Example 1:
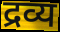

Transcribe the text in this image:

द्रव्य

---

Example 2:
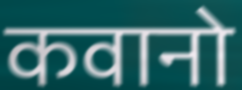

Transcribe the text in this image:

कवानो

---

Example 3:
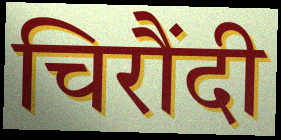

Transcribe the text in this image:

चिरौंदी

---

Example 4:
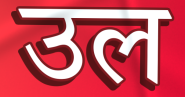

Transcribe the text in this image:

उल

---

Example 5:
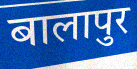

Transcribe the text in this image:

बालापुर